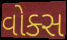
વોક્સ